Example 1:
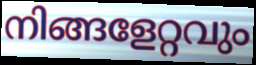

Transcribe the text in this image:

നിങ്ങളേറ്റവും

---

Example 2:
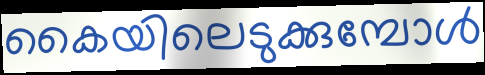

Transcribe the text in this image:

കൈയിലെടുക്കുമ്പോൾ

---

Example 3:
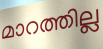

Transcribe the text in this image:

മാറത്തില്ല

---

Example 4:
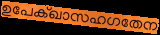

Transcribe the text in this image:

ഉപേക്ഖാസഹഗതേന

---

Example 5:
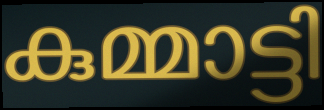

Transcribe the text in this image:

കുമ്മാട്ടി